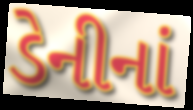
ડેનીનાં